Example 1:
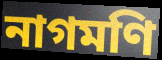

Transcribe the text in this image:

নাগমণি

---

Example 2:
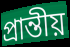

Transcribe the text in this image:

প্রান্তীয়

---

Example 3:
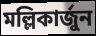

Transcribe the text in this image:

মল্লিকার্জুন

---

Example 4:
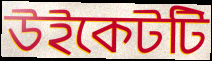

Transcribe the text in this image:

উইকেটটি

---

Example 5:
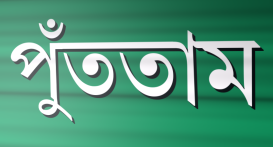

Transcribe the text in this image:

পুঁততাম